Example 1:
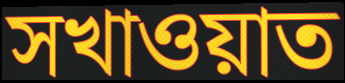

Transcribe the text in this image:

সখাওয়াত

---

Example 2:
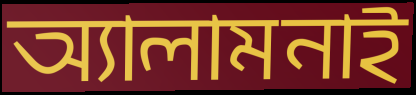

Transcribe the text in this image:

অ্যালামনাই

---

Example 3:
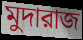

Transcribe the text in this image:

মুদারাজ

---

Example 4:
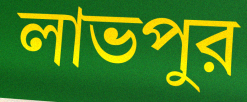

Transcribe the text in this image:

লাভপুর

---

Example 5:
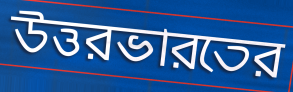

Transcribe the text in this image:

উত্তরভারতের